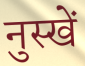
नुस्खें